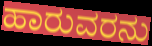
ಹಾರುವರನು